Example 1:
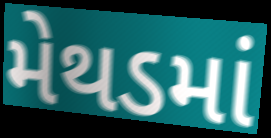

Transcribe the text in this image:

મેથડમાં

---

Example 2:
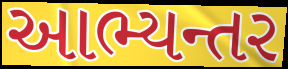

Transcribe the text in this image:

આભ્યન્તર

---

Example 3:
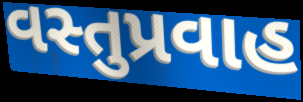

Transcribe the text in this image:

વસ્તુપ્રવાહ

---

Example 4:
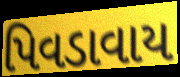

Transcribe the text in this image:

પિવડાવાય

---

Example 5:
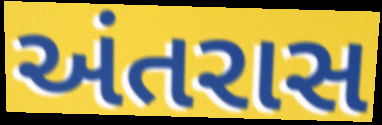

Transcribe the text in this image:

અંતરાસ